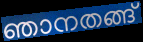
ഞാനതങ്ങ്